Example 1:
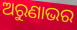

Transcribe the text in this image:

ଅରୁଣାଭର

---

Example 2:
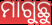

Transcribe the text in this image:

ମାଗୁଛୁ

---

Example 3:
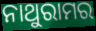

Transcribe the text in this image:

ନାଥୁରାମର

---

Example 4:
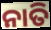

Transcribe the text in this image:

ନାତି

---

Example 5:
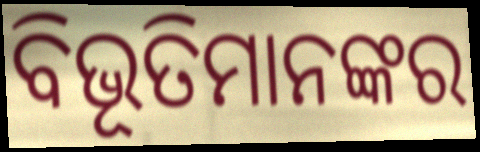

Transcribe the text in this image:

ବିଭୂତିମାନଙ୍କର